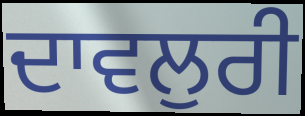
ਦਾਵਲੁਰੀ